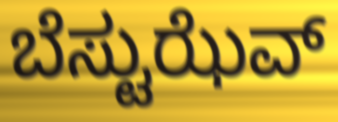
ಬೆಸ್ಟುಝೆವ್